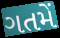
ગતમેં